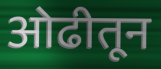
ओढीतून